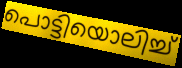
പൊട്ടിയൊലിച്ച്